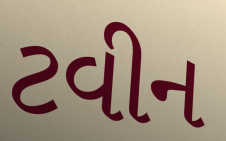
ટવીન